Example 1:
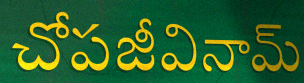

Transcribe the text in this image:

చోపజీవినామ్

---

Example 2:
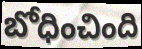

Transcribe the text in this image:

బోధించింది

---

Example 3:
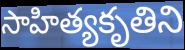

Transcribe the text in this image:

సాహిత్యకృతిని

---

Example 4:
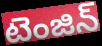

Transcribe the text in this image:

టెంజిన్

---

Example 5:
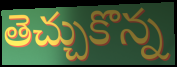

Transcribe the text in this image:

తెచ్చుకొన్న